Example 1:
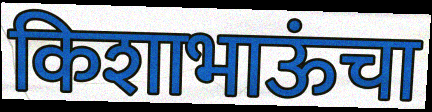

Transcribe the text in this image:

किशाभाऊंचा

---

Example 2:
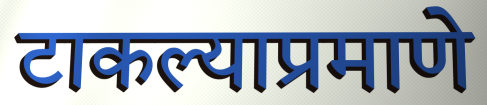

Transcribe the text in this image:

टाकल्याप्रमाणे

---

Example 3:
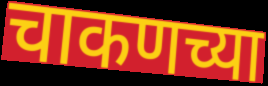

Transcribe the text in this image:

चाकणच्या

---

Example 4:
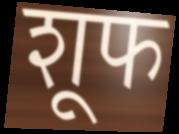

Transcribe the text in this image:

शूफ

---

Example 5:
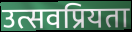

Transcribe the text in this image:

उत्सवप्रियता